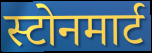
स्टोनमार्ट